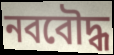
নববৌদ্ধ